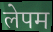
लेपम